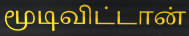
மூடிவிட்டான்